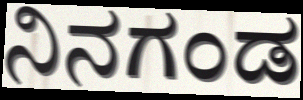
ನಿನಗಂಡ